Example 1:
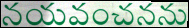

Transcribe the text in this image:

నయవంచనను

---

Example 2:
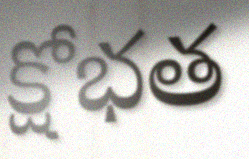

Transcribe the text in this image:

క్షోభత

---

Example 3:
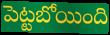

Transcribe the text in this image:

పెట్టబోయింది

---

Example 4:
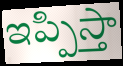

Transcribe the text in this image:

ఇప్పిస్తా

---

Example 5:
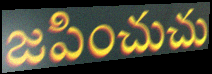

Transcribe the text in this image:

జపించుచు